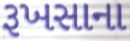
રૂખસાના